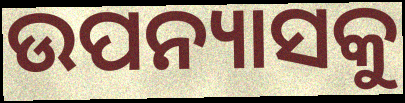
ଉପନ୍ୟାସକୁ